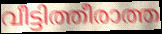
വീട്ടിത്തീരാത്ത